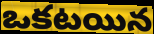
ఒకటయిన